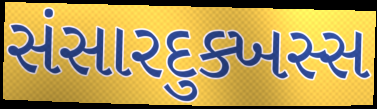
સંસારદુક્ખસ્સ